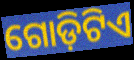
ଗୋଡ଼ିଟିଏ